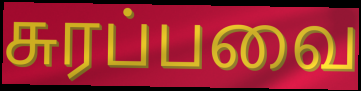
சுரப்பவை